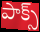
పాక్స్